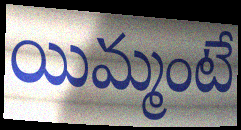
యిమ్మంటే